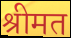
श्रीमत